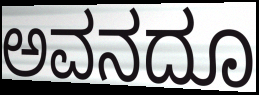
ಅವನದೂ